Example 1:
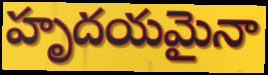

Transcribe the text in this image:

హృదయమైనా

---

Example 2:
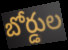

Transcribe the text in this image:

బోర్డుల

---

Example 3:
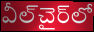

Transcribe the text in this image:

వీల్‌చైర్‌లో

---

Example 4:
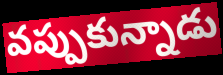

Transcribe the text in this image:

వప్పుకున్నాడు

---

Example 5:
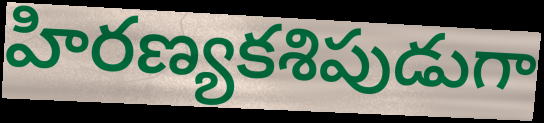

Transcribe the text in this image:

హిరణ్యకశిపుడుగా